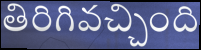
తిరిగివచ్చింది